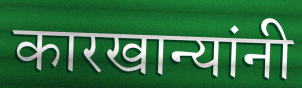
कारखान्यांनी